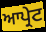
ਆਪ੍ਰੇਟ